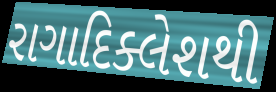
રાગાદિક્લેશથી